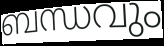
ബന്ധവും